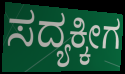
ಸದ್ಯಕ್ಕೀಗ